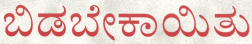
ಬಿಡಬೇಕಾಯಿತು